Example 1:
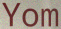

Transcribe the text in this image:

Yom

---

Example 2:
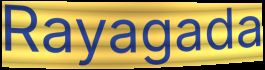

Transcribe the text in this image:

Rayagada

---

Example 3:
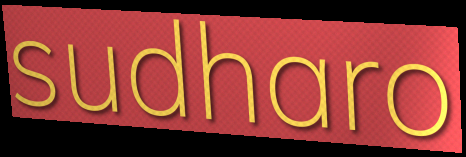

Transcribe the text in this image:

sudharo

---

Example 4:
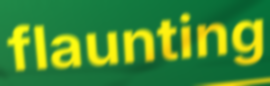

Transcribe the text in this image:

flaunting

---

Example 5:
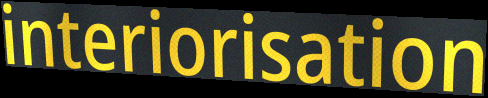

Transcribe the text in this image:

interiorisation